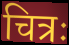
चित्रः